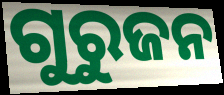
ଗୁରୁଜନ